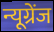
न्यूग्रेंज